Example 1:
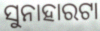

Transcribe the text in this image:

ସୁନାହାରଟା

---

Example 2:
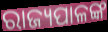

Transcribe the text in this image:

ରାଜ୍ୟପାଳଙ୍କ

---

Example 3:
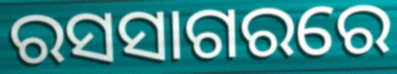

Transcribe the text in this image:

ରସସାଗରରେ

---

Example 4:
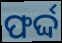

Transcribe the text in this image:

ଫର୍ଦ୍ଦ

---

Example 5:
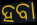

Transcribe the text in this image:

ହବା